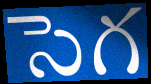
సెగ